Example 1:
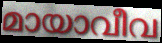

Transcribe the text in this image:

മായാവീവ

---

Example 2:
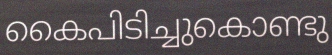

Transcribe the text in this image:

കൈപിടിച്ചുകൊണ്ടു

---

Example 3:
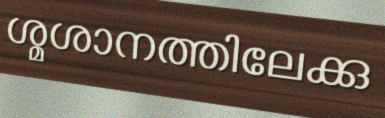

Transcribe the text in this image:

ശ്മശാനത്തിലേക്കു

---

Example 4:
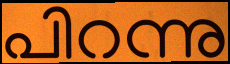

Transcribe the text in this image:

പിറന്നു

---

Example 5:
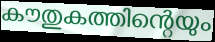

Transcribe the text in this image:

കൗതുകത്തിന്റെയും